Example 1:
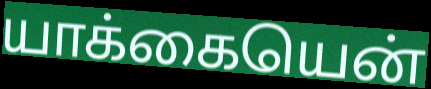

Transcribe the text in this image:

யாக்கையென்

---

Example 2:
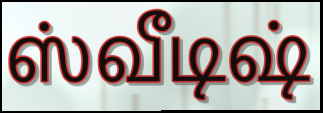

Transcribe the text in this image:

ஸ்வீடிஷ்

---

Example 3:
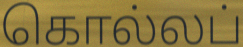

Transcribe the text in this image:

கொல்லப்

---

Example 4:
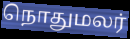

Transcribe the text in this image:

நொதுமலர்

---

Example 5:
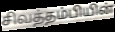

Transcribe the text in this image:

சிவத்தம்பியின்